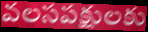
వలసపక్షులకు